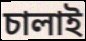
চালাই